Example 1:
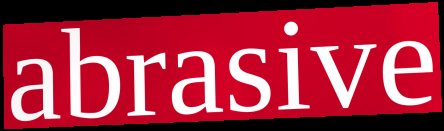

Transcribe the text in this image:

abrasive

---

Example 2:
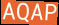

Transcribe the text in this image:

AQAP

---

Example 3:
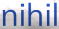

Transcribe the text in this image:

nihil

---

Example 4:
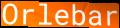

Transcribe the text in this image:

Orlebar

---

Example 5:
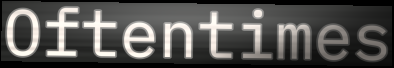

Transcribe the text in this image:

Oftentimes